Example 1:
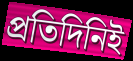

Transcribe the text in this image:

প্রতিদিনিই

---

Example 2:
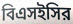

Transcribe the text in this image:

বিএসইসির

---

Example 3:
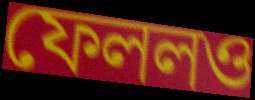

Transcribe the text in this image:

ফেললও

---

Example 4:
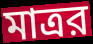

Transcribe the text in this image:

মাত্রর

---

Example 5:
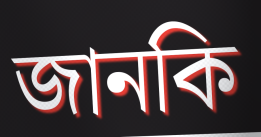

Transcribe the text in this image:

জানকি